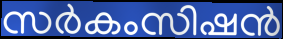
സർകംസിഷൻ